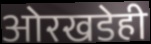
ओरखडेही